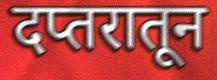
दप्तरातून